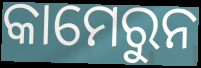
କାମେରୁନ